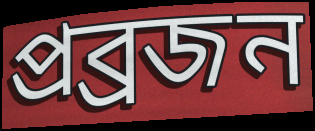
প্ৰব্ৰজন